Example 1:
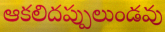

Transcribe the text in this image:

ఆకలిదప్పులుండవు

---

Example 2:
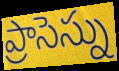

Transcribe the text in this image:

ప్రాసెస్ను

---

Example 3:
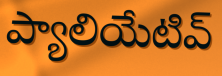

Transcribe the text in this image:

ప్యాలియేటివ్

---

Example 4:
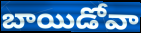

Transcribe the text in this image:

బాయిడోవా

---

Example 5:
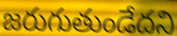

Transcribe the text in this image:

జరుగుతుండేదని